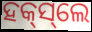
ହକ୍‌ସ୍‌ଲେ